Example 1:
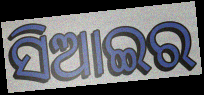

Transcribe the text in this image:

ସିଆଇର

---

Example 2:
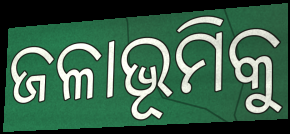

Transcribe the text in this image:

ଜଳାଭୂମିକୁ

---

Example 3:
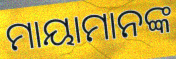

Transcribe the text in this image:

ମାୟାମାନଙ୍କ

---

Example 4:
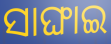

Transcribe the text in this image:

ସାଙ୍ଘାଇ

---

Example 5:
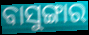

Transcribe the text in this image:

ବାସୁଙ୍ଗାର